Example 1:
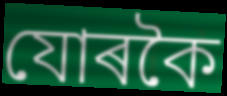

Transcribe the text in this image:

যোৰকৈ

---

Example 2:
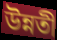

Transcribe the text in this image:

উন্নতী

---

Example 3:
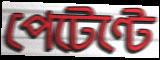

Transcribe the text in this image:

পেটেণ্টে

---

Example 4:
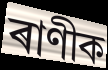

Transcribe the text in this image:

ৰাণীক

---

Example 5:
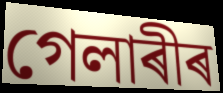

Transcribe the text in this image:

গেলাৰীৰ